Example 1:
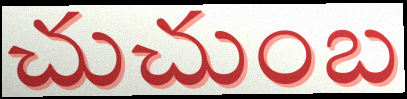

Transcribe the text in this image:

చుచుంబ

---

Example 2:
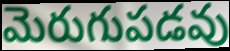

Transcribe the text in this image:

మెరుగుపడవు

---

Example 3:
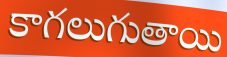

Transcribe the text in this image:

కాగలుగుతాయి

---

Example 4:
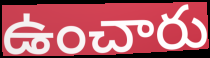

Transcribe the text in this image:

ఉంచారు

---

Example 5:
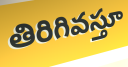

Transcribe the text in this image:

తిరిగివస్తూ